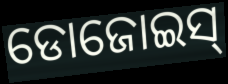
ଡୋଜୋଇସ୍